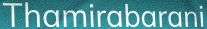
Thamirabarani